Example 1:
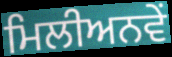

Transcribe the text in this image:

ਮਿਲੀਅਨਵੇਂ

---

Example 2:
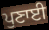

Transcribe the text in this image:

ਪੁਣਾਈ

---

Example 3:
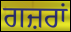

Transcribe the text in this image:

ਗਜ਼ਰਾਂ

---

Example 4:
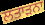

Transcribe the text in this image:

ਲਤਾੜਨਾ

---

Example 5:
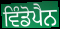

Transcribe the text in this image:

ਵਿੰਡੋਪੈਨ